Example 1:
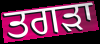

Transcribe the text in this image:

ਤਗੜਾ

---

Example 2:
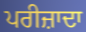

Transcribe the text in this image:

ਪਰੀਜ਼ਾਦਾ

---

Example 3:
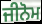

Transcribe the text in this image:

ਜੀਨੋਮ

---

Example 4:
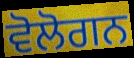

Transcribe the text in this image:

ਵੋਲੋਗਨ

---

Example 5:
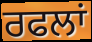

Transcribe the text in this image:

ਰਫਲਾਂ